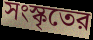
সংস্কৃতের